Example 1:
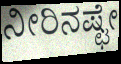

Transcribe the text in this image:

ನೀರಿನಷ್ಟೇ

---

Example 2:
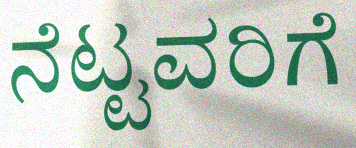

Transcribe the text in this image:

ನೆಟ್ಟವರಿಗೆ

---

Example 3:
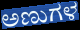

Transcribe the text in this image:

ಅಣುಗಳ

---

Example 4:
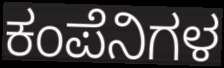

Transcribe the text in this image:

ಕಂಪೆನಿಗಳ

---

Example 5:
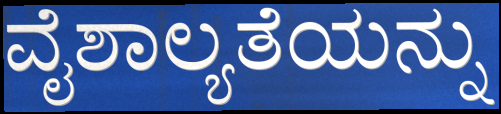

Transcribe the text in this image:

ವೈಶಾಲ್ಯತೆಯನ್ನು